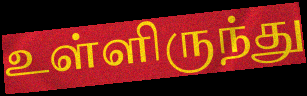
உள்ளிருந்து